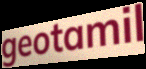
geotamil